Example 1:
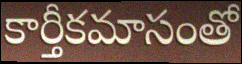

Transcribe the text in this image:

కార్తీకమాసంతో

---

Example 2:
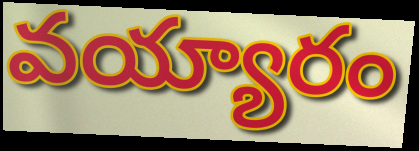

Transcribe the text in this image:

వయ్యారం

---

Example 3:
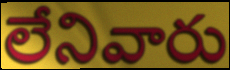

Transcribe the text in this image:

లేనివారు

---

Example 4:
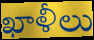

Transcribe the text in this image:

ఖాళీలు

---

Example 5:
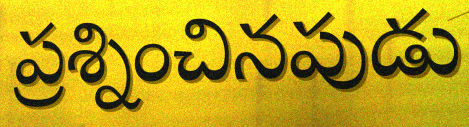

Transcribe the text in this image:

ప్రశ్నించినపుడు